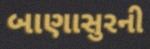
બાણાસુરની